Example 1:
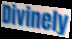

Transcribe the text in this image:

Divinely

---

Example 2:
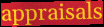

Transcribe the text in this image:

appraisals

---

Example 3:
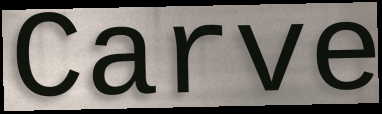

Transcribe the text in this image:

Carve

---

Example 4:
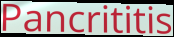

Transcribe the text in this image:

Pancrititis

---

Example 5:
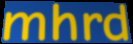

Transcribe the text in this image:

mhrd